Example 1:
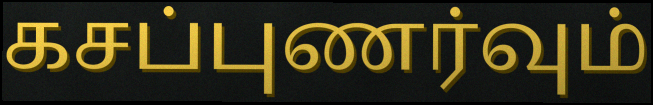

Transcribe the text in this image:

கசப்புணர்வும்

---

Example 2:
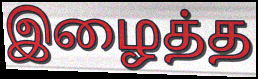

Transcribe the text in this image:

இழைத்த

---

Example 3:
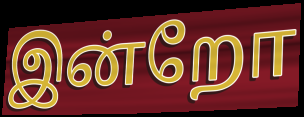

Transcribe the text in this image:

இன்றோ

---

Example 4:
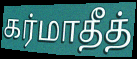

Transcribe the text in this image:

கர்மாதீத்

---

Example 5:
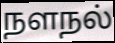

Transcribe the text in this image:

நளநல்